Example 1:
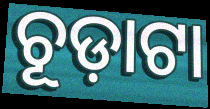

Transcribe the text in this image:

ଚୂଡ଼ାଟା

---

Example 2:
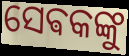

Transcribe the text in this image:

ସେଵକଙ୍କୁ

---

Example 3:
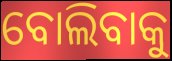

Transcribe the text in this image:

ବୋଲିବାକୁ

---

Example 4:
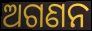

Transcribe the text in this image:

ଅଗଣନ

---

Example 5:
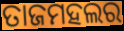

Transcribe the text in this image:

ତାଜମହଲର